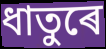
ধাতুৰে